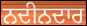
ਨਦੀਨਦਾਰ